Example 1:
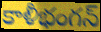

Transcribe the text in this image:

కాళీభంగన్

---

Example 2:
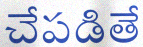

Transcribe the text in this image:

చేపడితే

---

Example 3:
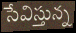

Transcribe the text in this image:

సేవిస్తున్న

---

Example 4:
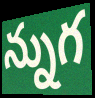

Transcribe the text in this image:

న్నుగ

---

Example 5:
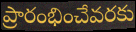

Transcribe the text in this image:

ప్రారంభించేవరకు